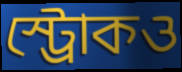
স্ট্রোকও